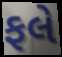
ફલે